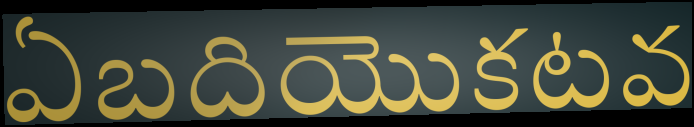
ఏబదియొకటవ